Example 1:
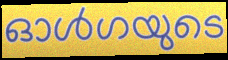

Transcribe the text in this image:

ഓൾഗയുടെ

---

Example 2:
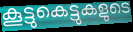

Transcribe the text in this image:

കൂട്ടുകെട്ടുകളുടെ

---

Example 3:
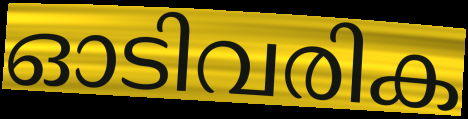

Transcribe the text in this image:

ഓടിവരിക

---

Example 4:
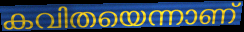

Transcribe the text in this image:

കവിതയെന്നാണ്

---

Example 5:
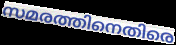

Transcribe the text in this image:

സമരത്തിനെതിരെ